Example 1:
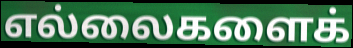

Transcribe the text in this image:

எல்லைகளைக்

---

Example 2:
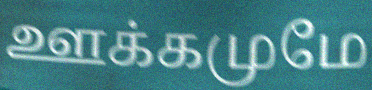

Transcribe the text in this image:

ஊக்கமுமே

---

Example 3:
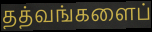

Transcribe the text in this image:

தத்வங்களைப்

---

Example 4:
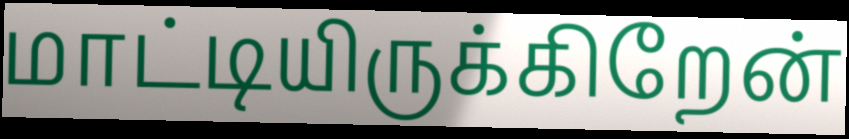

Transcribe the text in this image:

மாட்டியிருக்கிறேன்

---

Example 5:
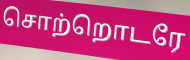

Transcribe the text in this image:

சொற்றொடரே